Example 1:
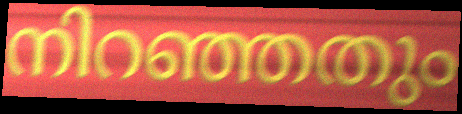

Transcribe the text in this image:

നിറഞ്ഞതും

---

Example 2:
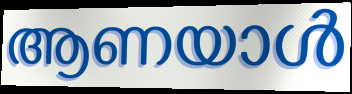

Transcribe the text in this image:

ആണയാൾ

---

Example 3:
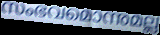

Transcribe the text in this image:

സംഭവമൊന്നുമല്ല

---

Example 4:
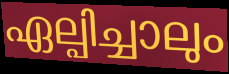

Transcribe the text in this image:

ഏല്പിച്ചാലും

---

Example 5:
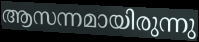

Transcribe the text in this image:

ആസന്നമായിരുന്നു